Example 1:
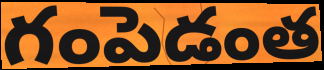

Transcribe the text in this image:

గంపెడంత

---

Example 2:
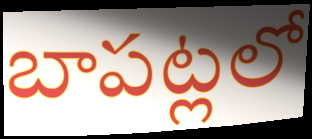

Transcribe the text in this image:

బాపట్లలో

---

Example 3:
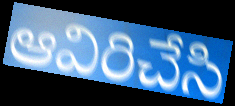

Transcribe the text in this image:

ఆవిరిచేసి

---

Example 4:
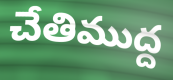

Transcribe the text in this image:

చేతిముద్ద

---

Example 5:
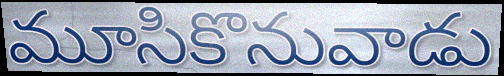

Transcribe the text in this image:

మూసికొనువాడు